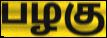
பழகு